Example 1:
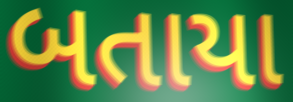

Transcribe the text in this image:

બતાયા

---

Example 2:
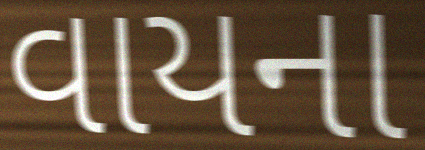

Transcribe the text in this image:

વાયના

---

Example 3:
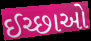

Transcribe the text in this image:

ઈચ્છાઓ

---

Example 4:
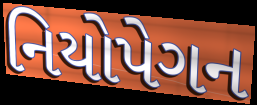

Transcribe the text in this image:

નિયોપેગન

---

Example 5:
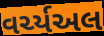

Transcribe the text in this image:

વર્ચ્યઅલ